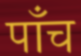
पॉंच